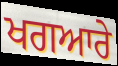
ਖਗਆਰੇ